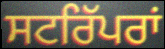
ਸਟਰਿੱਪਰਾਂ